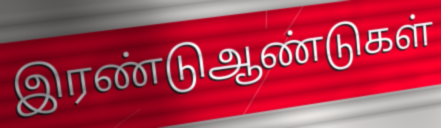
இரண்டுஆண்டுகள்